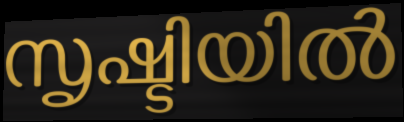
സൃഷ്ടിയിൽ